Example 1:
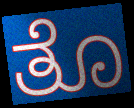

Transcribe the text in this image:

ತೊ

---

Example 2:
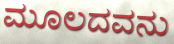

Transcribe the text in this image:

ಮೂಲದವನು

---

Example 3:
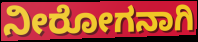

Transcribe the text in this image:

ನೀರೋಗನಾಗಿ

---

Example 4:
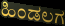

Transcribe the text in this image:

ಹಿಂಡಲಗ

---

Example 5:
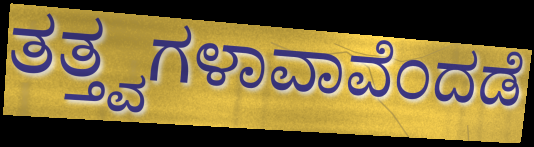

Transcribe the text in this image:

ತತ್ತ್ವಗಳಾವಾವೆಂದಡೆ